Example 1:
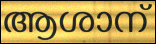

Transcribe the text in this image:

ആശാന്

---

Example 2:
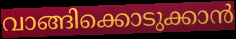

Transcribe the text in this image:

വാങ്ങിക്കൊടുക്കാൻ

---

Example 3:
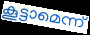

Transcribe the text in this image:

കൂട്ടാമെന്ന്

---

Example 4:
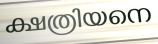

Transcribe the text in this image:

ക്ഷത്രിയനെ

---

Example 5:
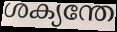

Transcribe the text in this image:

ശക്യന്തേ